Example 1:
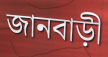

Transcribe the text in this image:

জানবাড়ী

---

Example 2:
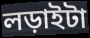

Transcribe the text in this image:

লড়াইটা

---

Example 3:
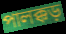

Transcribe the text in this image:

পালক্কড়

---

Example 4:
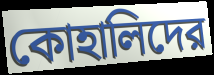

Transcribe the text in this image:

কোহালিদের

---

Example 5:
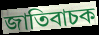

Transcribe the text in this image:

জাতিবাচক